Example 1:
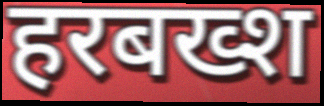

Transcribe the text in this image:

हरबख्श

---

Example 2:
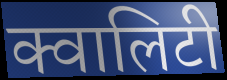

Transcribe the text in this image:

क्‍वालिटी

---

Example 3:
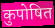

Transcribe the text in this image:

कुपोषित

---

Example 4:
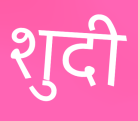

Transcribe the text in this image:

शुदी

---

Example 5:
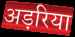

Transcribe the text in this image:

अड़रिया